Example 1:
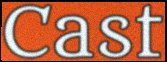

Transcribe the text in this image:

Cast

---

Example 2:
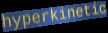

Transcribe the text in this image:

hyperkinetic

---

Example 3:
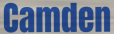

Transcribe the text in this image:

Camden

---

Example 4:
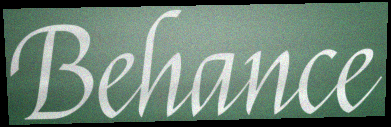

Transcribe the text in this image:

Behance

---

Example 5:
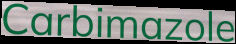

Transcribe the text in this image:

Carbimazole